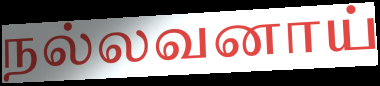
நல்லவனாய்